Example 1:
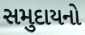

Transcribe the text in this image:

સમુદાયનો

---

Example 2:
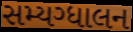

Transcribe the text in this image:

સમ્યગ્ધાલન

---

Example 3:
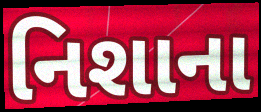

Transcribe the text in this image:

નિશાના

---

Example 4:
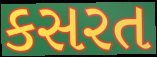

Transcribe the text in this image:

કસરત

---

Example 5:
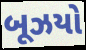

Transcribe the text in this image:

બૂઝયો